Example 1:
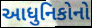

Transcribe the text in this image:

આધુનિકોનો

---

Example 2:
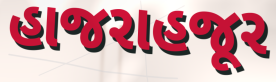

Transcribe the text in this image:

હાજરાહજૂર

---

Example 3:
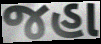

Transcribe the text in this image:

જહા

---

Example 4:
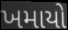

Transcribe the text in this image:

ખમાયો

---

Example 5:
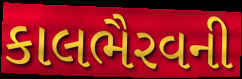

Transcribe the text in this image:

કાલભૈરવની